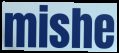
mishe